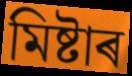
মিষ্টাৰ